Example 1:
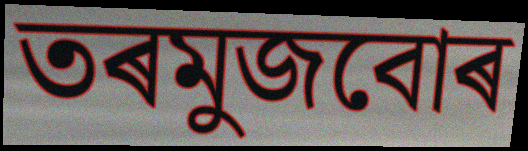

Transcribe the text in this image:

তৰমুজবোৰ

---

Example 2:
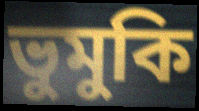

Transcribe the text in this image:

ভুমুকি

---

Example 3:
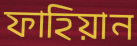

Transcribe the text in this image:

ফাহিয়ান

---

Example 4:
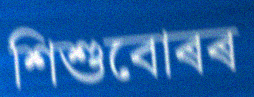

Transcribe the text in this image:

শিশুবোৰৰ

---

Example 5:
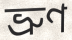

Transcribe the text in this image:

ভ্ৰুণ